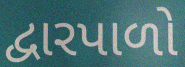
દ્વારપાળો